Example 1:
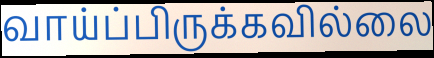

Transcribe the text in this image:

வாய்ப்பிருக்கவில்லை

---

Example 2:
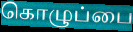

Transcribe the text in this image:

கொழுப்பை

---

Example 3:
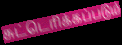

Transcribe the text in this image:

சுட்டெரிக்கப்படும்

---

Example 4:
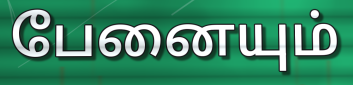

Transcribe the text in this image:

பேனையும்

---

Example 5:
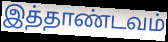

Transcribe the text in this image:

இத்தாண்டவம்